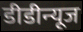
डीडीन्यूज